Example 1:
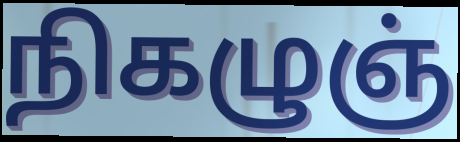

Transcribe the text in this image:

நிகழுஞ்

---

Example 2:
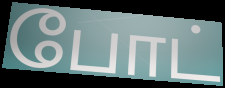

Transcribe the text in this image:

போட்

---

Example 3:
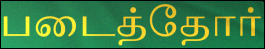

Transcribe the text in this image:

படைத்தோர்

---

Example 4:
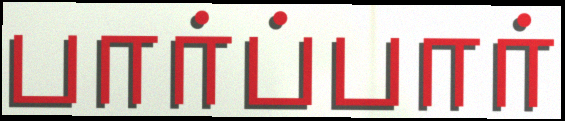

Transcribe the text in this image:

பார்ப்பார்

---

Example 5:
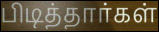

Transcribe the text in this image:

பிடித்தார்கள்